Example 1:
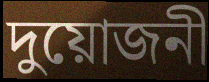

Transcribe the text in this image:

দুয়োজনী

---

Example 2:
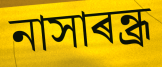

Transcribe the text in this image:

নাসাৰন্ধ্ৰ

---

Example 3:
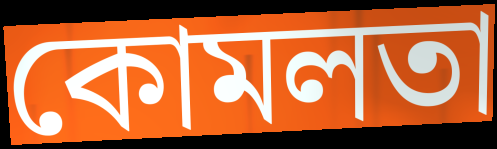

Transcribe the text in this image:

কোমলতা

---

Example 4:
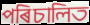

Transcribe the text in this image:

পৰিচালিত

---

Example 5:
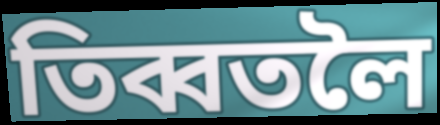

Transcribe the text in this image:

তিব্বতলৈ